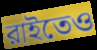
রাইতেও